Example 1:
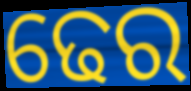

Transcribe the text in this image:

ଢେର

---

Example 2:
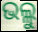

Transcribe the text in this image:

ଭଲ୍ଲୁ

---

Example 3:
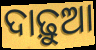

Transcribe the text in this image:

ଦାଢ଼ୁଆ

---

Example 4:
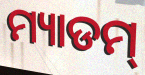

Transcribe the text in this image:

ମ୍ୟାଡମ୍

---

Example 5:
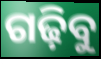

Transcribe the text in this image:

ଗଢ଼ିବୁ